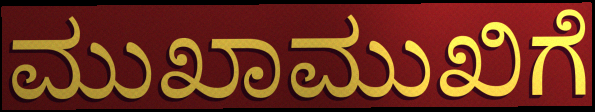
ಮುಖಾಮುಖಿಗೆ